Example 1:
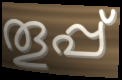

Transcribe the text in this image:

തൂപ്പ്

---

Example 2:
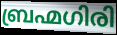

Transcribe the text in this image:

ബ്രഹ്മഗിരി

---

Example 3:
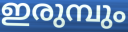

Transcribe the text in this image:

ഇരുമ്പും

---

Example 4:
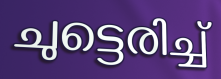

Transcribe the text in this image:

ചുട്ടെരിച്ച്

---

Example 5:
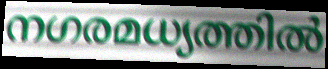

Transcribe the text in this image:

നഗരമധ്യത്തിൽ